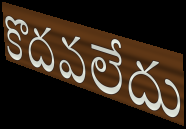
కొదవలేదు